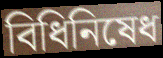
বিধিনিষেধ